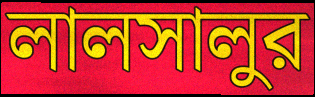
লালসালুর